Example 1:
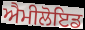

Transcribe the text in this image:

ਐਮੀਲੋਇਡ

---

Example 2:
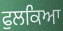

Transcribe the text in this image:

ਫੁਲਕਿਆ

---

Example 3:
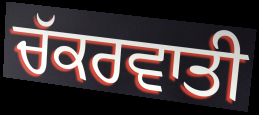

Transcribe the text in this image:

ਚੱਕਰਵਾਤੀ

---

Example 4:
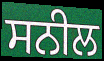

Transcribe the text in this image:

ਸਨੀਲ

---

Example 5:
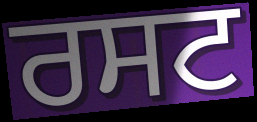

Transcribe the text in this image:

ਰਸਟ